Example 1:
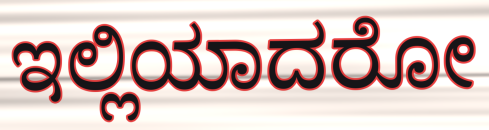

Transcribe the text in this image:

ಇಲ್ಲಿಯಾದರೋ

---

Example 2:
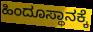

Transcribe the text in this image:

ಹಿಂದೂಸ್ಥಾನಕ್ಕೆ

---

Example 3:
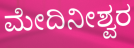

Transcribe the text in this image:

ಮೇದಿನೀಶ್ವರ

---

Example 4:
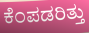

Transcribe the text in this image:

ಕೆಂಪಡರಿತ್ತು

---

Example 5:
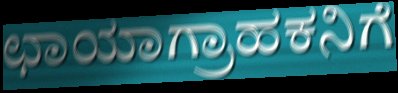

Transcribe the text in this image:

ಛಾಯಾಗ್ರಾಹಕನಿಗೆ